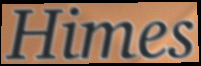
Himes